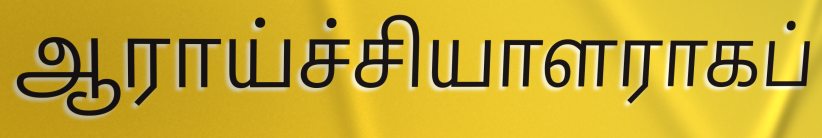
ஆராய்ச்சியாளராகப்